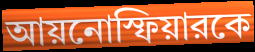
আয়নোস্ফিয়ারকে